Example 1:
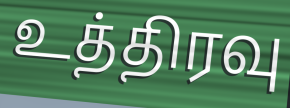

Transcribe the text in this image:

உத்திரவு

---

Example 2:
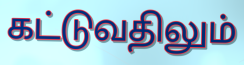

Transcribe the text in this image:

கட்டுவதிலும்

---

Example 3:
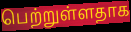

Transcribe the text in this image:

பெற்றுள்ளதாக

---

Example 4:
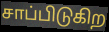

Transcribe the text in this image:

சாப்பிடுகிற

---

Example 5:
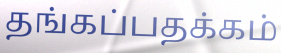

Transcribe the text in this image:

தங்கப்பதக்கம்